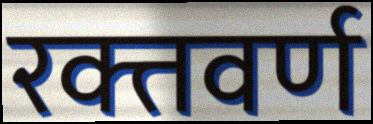
रक्तवर्ण